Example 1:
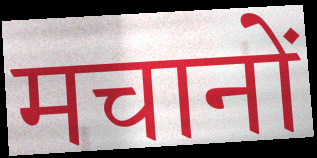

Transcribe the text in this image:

मचानों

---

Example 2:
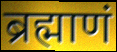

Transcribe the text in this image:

ब्रह्माणं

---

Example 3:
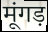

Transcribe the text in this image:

मूंगड़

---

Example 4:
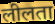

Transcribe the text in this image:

लीलता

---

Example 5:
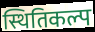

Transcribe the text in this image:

स्थितिकल्प